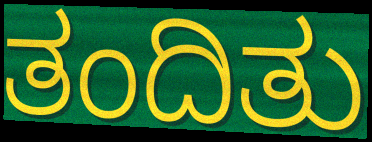
ತಂದಿತು